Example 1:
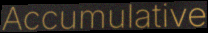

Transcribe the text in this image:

Accumulative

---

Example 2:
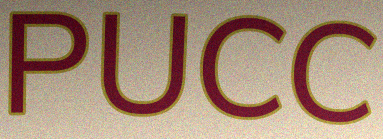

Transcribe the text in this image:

PUCC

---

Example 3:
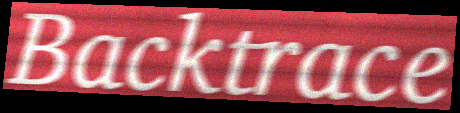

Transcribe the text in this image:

Backtrace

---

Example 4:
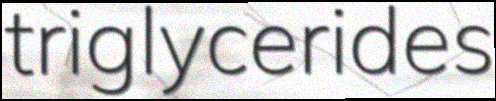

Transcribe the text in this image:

triglycerides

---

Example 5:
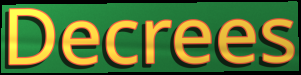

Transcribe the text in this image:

Decrees